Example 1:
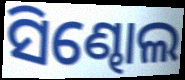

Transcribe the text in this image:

ସିଣ୍ଢୋଲ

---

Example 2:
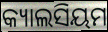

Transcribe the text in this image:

କ୍ୟାଲସିୟମ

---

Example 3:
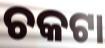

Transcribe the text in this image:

ଚକଟା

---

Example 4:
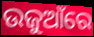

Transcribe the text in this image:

ଉଜୁଆଁରେ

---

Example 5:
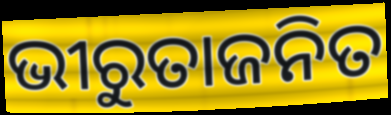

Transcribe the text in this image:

ଭୀରୁତାଜନିତ